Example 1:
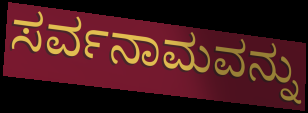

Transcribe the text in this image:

ಸರ್ವನಾಮವನ್ನು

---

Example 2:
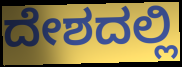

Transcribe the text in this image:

ದೇಶದಲ್ಲಿ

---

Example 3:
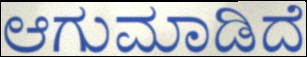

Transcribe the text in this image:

ಆಗುಮಾಡಿದೆ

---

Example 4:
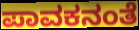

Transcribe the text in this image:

ಪಾವಕನಂತೆ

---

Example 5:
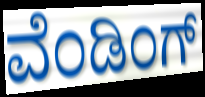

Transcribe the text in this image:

ವೆಂಡಿಂಗ್